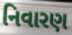
નિવારણ